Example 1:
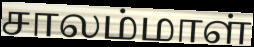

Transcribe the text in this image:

சாலம்மாள்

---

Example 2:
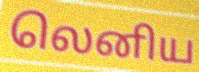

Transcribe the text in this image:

லெனிய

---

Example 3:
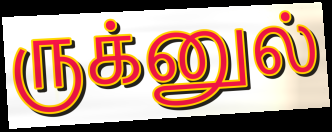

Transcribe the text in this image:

ருக்னுல்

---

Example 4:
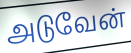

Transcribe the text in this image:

அடுவேன்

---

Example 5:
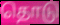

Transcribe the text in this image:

தொடு